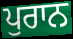
ਪੁਰਾਨ